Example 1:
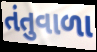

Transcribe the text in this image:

તંતુવાળા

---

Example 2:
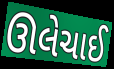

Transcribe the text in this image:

ઊલેચાઈ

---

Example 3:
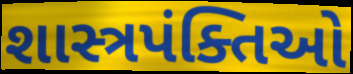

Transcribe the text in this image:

શાસ્ત્રપંક્તિઓ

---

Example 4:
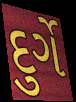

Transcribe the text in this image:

દુર્ગે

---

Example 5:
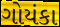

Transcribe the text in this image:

ગોયંકા